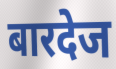
बारदेज